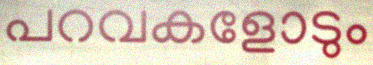
പറവകളോടും